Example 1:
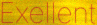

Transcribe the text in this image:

Exellent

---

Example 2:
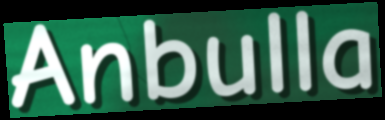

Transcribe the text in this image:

Anbulla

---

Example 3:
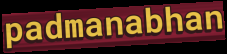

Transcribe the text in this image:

padmanabhan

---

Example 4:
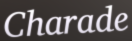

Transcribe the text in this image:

Charade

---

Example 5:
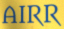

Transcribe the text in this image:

AIRR